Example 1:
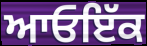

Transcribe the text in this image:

ਆਓਇੱਕ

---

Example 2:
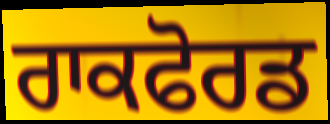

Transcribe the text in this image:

ਰਾਕਫੋਰਡ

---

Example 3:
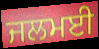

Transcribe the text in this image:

ਜਲਮਈ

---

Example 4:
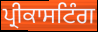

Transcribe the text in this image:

ਪ੍ਰੀਕਾਸਟਿੰਗ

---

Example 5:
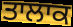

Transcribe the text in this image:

ਤਾਲਾਕ